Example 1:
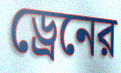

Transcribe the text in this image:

ড্রেনের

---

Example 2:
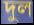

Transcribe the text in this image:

দুল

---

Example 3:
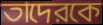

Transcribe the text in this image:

তাদেরকে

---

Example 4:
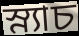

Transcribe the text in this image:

স্ন্যাচ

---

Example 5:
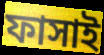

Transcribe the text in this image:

ফাসাই